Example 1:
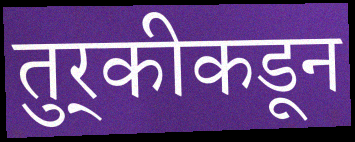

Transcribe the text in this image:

तुर्कीकडून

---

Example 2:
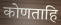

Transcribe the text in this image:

कोणताहि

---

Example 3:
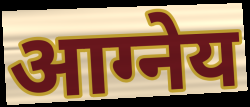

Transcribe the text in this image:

आग्नेय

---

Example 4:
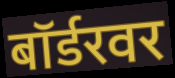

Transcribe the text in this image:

बॉर्डरवर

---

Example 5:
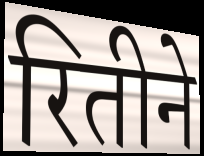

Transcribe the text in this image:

रितीने